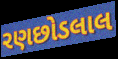
રણછોડલાલ